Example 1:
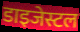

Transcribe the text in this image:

डाइजेस्टल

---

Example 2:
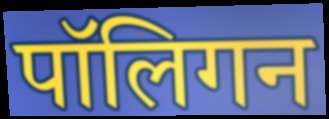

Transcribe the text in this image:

पॉलिगन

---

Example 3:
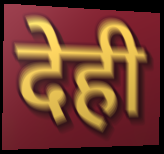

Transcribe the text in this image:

देही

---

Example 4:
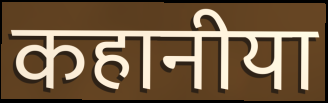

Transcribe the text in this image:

कहानीया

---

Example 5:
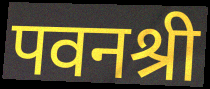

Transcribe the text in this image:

पवनश्री